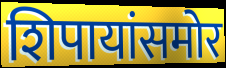
शिपायांसमोर